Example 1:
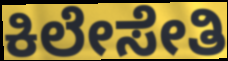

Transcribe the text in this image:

ಕಿಲೇಸೇತಿ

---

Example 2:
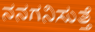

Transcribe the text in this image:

ನನಗನಿಸುತ್ತೆ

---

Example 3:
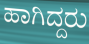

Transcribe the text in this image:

ಹಾಗಿದ್ದರು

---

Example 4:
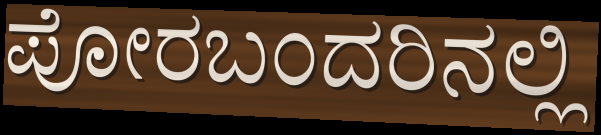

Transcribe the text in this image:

ಪೋರಬಂದರಿನಲ್ಲಿ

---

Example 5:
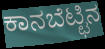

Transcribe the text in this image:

ಕಾನಬೆಟ್ಟಿನ